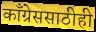
काँग्रेससाठीही